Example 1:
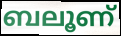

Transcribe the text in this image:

ബലൂണ്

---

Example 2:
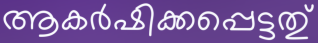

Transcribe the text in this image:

ആകർഷിക്കപ്പെട്ടതു്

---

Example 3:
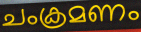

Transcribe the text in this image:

ചംക്രമണം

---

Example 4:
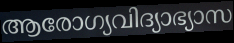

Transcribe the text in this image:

ആരോഗ്യവിദ്യാഭ്യാസ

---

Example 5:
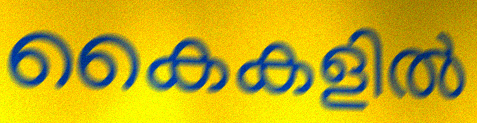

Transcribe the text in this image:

കൈകളിൽ